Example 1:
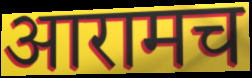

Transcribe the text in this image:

आरामच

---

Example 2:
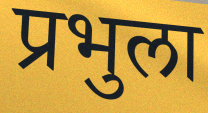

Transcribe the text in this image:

प्रभुला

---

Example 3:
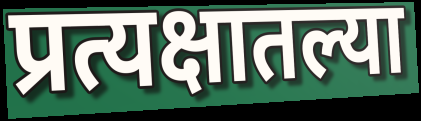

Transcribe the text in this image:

प्रत्यक्षातल्या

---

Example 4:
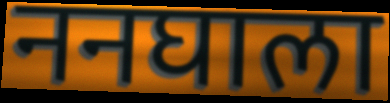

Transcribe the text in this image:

ननघाला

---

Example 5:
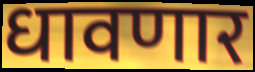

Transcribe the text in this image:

धावणार